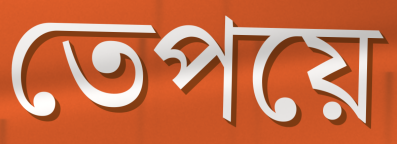
তেপয়ে